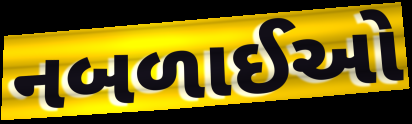
નબળાઈઓ